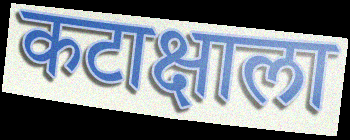
कटाक्षाला